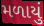
મળાયું